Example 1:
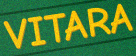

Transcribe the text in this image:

VITARA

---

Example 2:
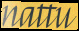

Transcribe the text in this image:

nattu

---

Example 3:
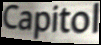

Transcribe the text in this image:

Capitol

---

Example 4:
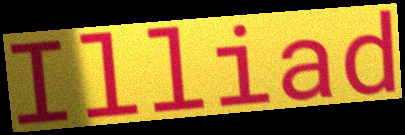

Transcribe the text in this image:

Illiad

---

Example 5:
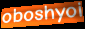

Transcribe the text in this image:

oboshyoi